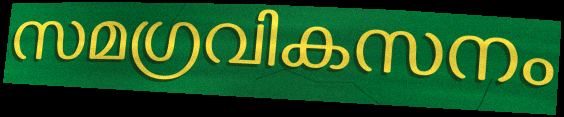
സമഗ്രവികസനം